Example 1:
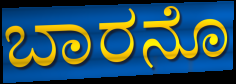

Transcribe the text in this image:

ಬಾರನೊ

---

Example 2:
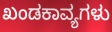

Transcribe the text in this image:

ಖಂಡಕಾವ್ಯಗಳು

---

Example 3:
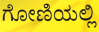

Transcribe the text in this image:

ಗೋಣಿಯಲ್ಲಿ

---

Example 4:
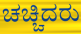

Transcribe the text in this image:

ಚಚ್ಚಿದರು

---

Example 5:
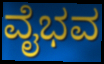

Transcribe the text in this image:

ವೈಭವ